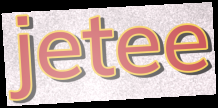
jetee